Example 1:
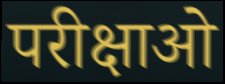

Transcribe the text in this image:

परीक्षाओ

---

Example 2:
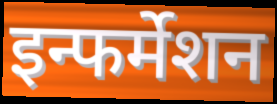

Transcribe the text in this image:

इन्फर्मेशन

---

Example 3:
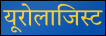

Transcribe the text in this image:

यूरोलाजिस्ट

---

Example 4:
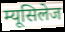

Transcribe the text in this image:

म्यूसिलेज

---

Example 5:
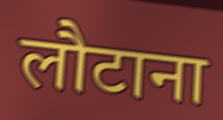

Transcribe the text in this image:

लौटाना